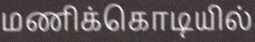
மணிக்கொடியில்